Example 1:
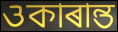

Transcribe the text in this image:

ওকাৰান্ত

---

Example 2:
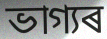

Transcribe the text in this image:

ভাগ্যৰ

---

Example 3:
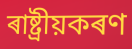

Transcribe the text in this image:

ৰাষ্ট্ৰীয়কৰণ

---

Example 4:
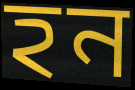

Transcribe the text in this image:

হন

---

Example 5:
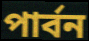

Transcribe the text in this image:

পাৰ্বন